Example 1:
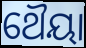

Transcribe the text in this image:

ଥୈୟା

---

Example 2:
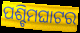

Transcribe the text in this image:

ପଶ୍ଚିମଘାଟର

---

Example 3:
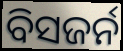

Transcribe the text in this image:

ବିସଜର୍ନ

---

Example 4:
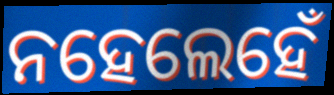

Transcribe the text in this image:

ନହେଲେହେଁ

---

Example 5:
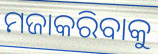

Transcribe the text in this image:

ମଜାକରିବାକୁ